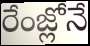
రేంజ్లోనే